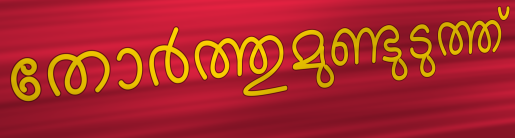
തോർത്തുമുണ്ടുടുത്ത്